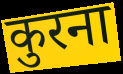
कुरना